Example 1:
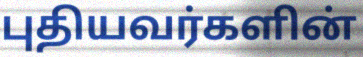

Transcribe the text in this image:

புதியவர்களின்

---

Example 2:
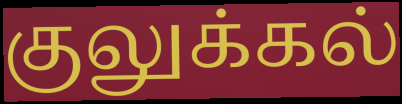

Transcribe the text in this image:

குலுக்கல்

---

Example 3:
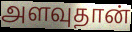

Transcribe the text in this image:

அளவுதான்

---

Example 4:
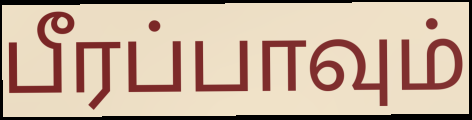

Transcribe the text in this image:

பீரப்பாவும்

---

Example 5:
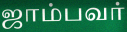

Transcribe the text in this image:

ஜாம்பவர்